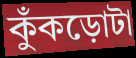
কুঁকড়োটা